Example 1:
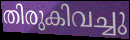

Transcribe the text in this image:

തിരുകിവച്ചു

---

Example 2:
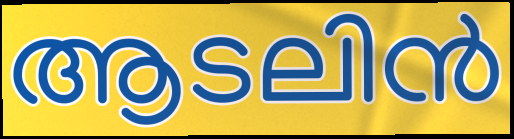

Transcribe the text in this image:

ആടലിൻ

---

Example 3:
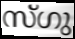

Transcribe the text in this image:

സ്ഗു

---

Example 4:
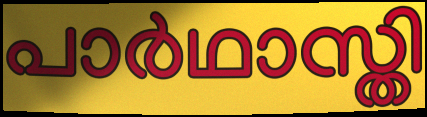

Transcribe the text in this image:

പാർഥാസ്തി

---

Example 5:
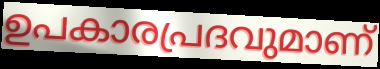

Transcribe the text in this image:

ഉപകാരപ്രദവുമാണ്